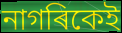
নাগৰিকেই